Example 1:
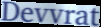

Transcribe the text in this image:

Devvrat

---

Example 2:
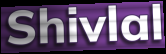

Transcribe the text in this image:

Shivlal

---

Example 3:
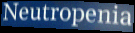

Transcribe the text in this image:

Neutropenia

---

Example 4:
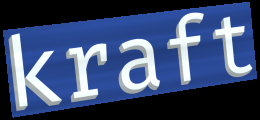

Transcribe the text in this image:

kraft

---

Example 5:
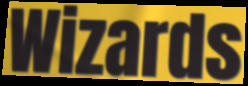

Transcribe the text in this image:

Wizards